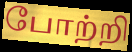
போற்றி